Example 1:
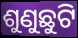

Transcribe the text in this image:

ଶୁଣୁଛୁଟି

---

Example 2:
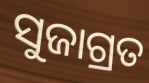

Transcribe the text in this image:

ସୁଜାଗ୍ରତ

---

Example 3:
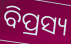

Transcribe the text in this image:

ବିପ୍ରସ୍ୟ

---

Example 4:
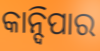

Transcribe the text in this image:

କାନ୍ଦିପାର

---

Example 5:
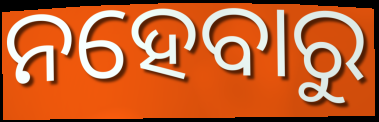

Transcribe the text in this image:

ନହେବାରୁ